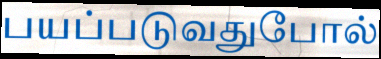
பயப்படுவதுபோல்